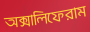
অক্সালিফেরাম